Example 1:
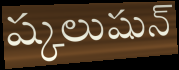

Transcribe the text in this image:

ష్కలుషున్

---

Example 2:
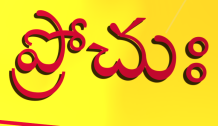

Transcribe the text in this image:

ప్రోచుః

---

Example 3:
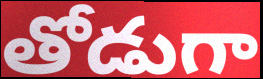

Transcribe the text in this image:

తోడుగా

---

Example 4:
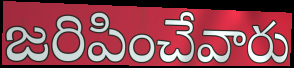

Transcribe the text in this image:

జరిపించేవారు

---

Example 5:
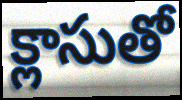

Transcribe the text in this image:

క్లాసుతో